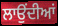
ਲਾਉੰਦੀਆਂ